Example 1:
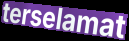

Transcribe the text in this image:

terselamat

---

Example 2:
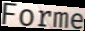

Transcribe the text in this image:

Forme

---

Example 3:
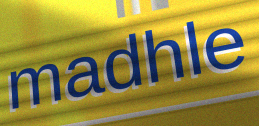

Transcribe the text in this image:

madhle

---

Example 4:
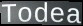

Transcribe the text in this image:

Todea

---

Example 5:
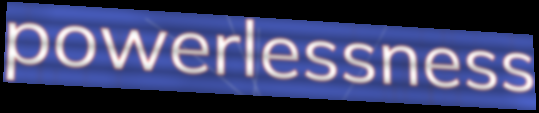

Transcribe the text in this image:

powerlessness